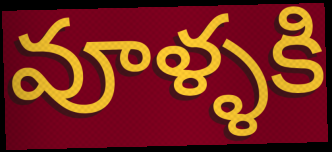
వూళ్ళకి